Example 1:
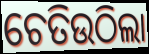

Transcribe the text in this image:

ଚେତିଉଠିଲା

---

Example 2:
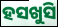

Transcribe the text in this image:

ହସଖୁସି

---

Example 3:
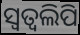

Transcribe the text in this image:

ସ୍ଵତ୍ଵଲିପି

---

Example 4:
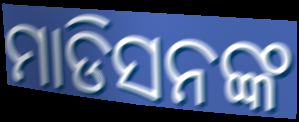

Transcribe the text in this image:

ମାଡିସନଙ୍କ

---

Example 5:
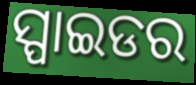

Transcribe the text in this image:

ସ୍ପାଇଡର